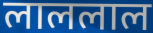
लाललाल